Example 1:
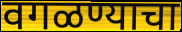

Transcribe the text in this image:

वगळण्याचा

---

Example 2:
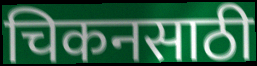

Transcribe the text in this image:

चिकनसाठी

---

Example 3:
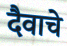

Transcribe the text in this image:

दैवाचे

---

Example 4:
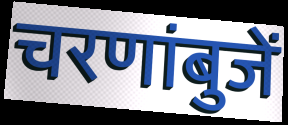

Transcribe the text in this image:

चरणांबुजें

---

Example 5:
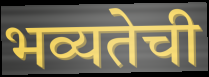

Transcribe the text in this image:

भव्यतेची